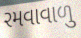
રમવાવાળુ